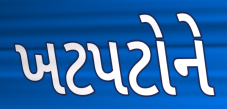
ખટપટોને